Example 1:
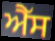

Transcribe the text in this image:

ਐੱਸ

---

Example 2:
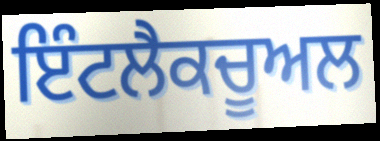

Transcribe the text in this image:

ਇੰਟਲੈਕਚੂਅਲ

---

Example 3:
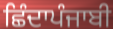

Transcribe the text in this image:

ਛਿੰਦਾਪੰਜਾਬੀ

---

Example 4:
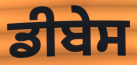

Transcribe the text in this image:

ਡੀਬੇਸ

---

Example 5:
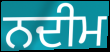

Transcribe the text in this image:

ਨਦੀਮ